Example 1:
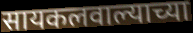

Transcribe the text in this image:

सायकलवाल्याच्या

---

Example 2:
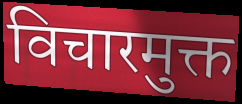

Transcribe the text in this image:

विचारमुक्त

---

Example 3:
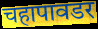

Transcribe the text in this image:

चहापावडर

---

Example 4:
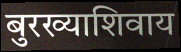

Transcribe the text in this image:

बुरख्याशिवाय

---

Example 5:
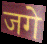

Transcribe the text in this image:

जगे